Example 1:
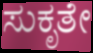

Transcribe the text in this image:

ಸುಕೃತೇ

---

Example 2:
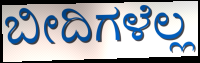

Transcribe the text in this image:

ಬೀದಿಗಳೆಲ್ಲ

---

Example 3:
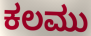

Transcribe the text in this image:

ಕಲಮು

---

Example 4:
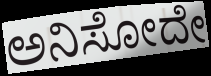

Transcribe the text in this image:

ಅನಿಸೋದೇ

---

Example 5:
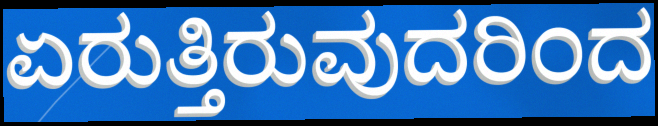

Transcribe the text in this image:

ಏರುತ್ತಿರುವುದರಿಂದ